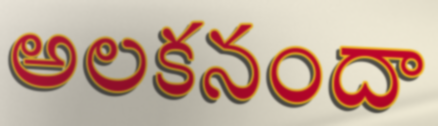
అలకనందా